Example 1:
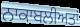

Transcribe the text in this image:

ਨਾਕਾਬਲੀਅਤਾਂ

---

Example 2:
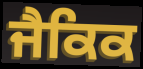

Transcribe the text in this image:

ਜੈਕਿਕ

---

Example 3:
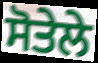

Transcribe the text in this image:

ਸੋਤੇਲੇ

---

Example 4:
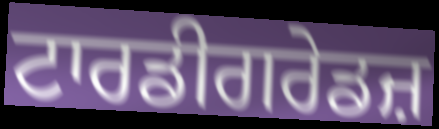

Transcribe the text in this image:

ਟਾਰਡੀਗਰੇਡਜ਼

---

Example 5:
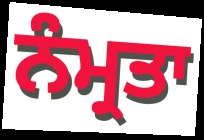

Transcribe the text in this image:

ਨੰਮ੍ਰਤਾ